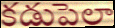
కడుపెలా